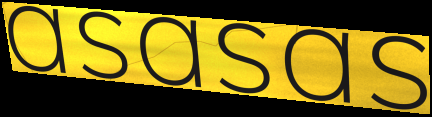
asasas